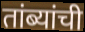
तांब्यांची